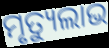
ମୃତ୍ୟୁଲାଭ